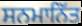
ਸਨਮਾਨਿੱਤ